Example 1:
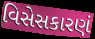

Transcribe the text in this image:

વિસેસકારણં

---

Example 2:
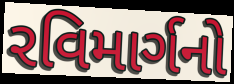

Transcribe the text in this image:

રવિમાર્ગનો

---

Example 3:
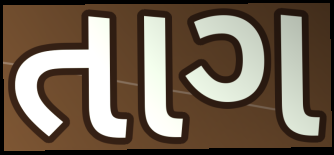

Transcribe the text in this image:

તાગ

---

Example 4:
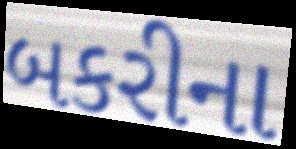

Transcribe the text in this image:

બકરીના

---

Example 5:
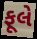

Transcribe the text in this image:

ફૂલે